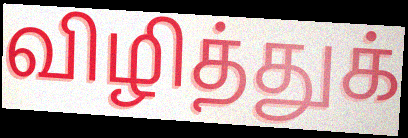
விழித்துக்